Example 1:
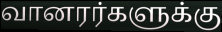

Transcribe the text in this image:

வானரர்களுக்கு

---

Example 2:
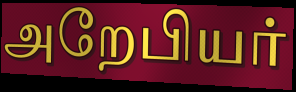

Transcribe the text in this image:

அறேபியர்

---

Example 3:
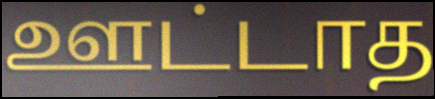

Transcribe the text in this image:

ஊட்டாத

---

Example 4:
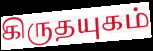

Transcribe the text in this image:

கிருதயுகம்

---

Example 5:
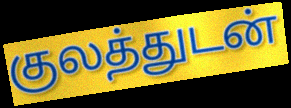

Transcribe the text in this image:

குலத்துடன்